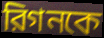
রিগনকে